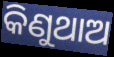
କିଣୁଥାଅ